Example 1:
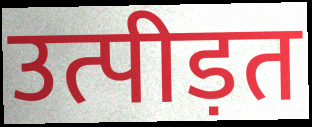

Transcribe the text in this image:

उत्पीड़त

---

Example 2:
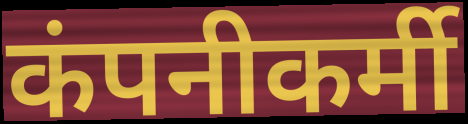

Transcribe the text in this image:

कंपनीकर्मी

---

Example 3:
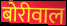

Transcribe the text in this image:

बोरीवाल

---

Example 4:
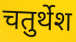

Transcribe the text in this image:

चतुर्थेश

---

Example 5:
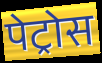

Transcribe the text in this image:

पेट्रोस